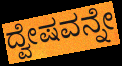
ದ್ವೇಷವನ್ನೇ